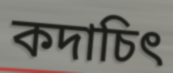
কদাচিৎ